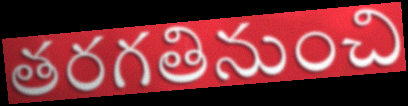
తరగతినుంచి